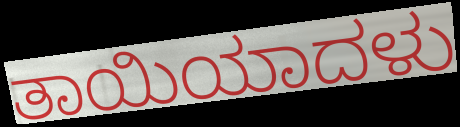
ತಾಯಿಯಾದಳು